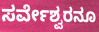
ಸರ್ವೇಶ್ವರನೂ